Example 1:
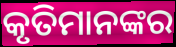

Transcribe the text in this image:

କୃତିମାନଙ୍କର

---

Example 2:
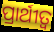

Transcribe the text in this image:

ପ୍ରାର୍ଥୀତ୍ଵ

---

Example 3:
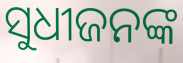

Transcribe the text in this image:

ସୁଧୀଜନଙ୍କ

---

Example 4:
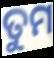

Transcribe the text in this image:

ତୁମ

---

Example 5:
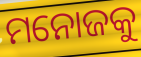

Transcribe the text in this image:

ମନୋଜକୁ